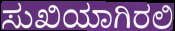
ಸುಖಿಯಾಗಿರಲಿ